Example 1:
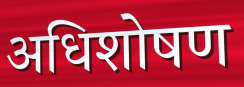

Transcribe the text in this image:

अधिशोषण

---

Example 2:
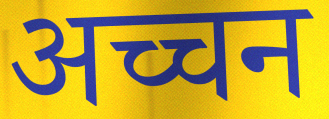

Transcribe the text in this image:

अच्चन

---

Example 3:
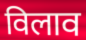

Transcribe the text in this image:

विलाव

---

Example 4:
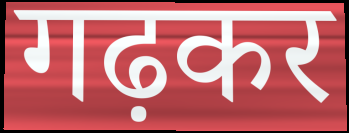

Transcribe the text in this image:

गढ़कर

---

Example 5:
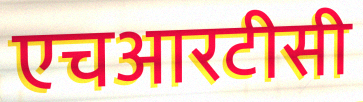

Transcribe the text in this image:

एचआरटीसी